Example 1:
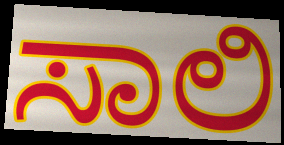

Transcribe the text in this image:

ಸಾಲಿ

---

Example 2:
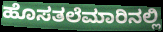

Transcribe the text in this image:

ಹೊಸತಲೆಮಾರಿನಲ್ಲಿ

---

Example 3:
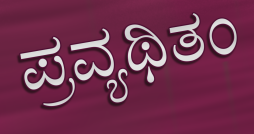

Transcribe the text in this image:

ಪ್ರವ್ಯಥಿತಂ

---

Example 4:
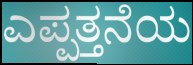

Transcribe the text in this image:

ಎಪ್ಪತ್ತನೆಯ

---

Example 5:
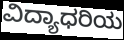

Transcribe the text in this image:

ವಿದ್ಯಾಧರಿಯ